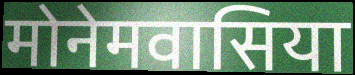
मोनेमवासिया